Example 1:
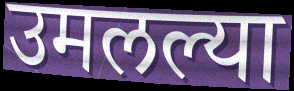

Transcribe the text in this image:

उमलल्या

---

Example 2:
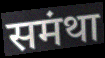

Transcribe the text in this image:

समंथा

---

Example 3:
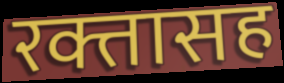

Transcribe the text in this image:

रक्तासह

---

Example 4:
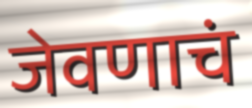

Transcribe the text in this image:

जेवणाचं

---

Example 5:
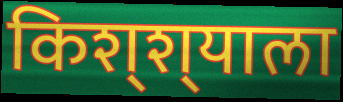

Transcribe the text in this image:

किश्श्याला